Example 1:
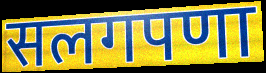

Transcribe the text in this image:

सलगपणा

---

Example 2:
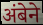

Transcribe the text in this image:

अंबेने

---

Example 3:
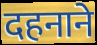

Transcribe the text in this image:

दहनाने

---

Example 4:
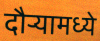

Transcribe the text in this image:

दौऱ्यामध्ये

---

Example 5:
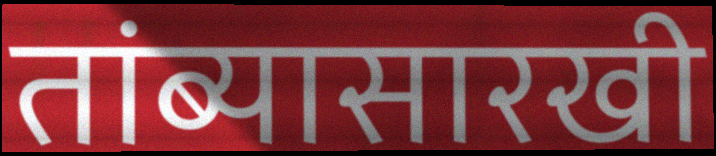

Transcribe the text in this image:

तांब्यासारखी